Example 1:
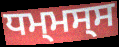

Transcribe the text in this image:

ਧਮ੍ਮਸ੍ਸ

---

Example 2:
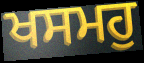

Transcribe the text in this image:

ਖਸਮਹੁ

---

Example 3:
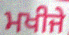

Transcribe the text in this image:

ਮਖੀਜੇ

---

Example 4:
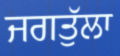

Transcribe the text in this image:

ਜਗਤੁੱਲਾ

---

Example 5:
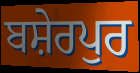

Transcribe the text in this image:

ਬਸ਼ੇਰਪੁਰ